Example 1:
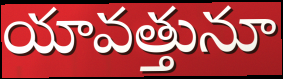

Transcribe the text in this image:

యావత్తునూ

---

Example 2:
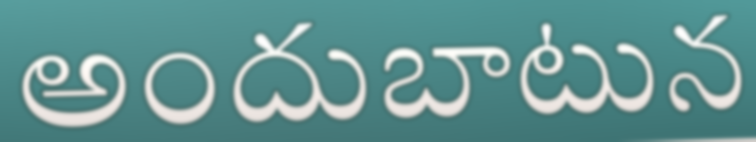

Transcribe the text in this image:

అందుబాటున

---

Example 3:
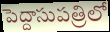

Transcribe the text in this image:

పెద్దాసుపత్రిలో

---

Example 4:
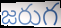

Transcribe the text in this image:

జరుగ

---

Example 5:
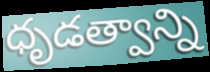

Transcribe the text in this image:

ధృడత్వాన్ని